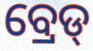
ବ୍ରେଡ୍